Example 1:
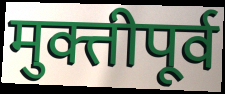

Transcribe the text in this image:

मुक्तीपूर्व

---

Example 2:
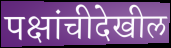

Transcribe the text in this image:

पक्षांचीदेखील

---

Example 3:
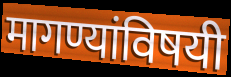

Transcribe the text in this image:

मागण्यांविषयी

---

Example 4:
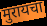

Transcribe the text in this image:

मुरायचा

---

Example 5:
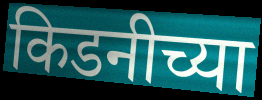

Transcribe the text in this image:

किडनीच्या